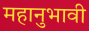
महानुभावी